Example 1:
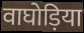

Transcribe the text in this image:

वाघोड़िया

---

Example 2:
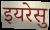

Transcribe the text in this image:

इयरेसु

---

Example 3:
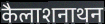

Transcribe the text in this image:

कैलाशनाथन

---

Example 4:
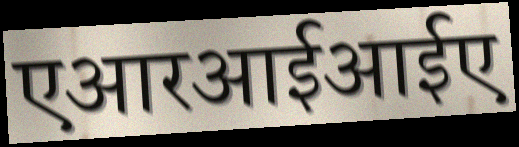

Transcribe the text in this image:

एआरआईआईए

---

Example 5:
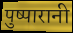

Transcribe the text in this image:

पुष्पारानी